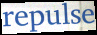
repulse